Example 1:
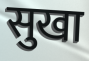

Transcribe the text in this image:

सुखा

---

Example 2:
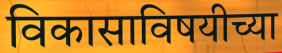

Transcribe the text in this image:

विकासाविषयीच्या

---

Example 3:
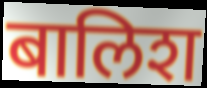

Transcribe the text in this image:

बालिश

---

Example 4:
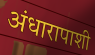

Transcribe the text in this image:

अंधारापाशी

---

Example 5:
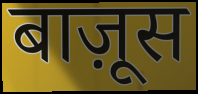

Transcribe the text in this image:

बाज़ूस